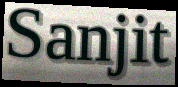
Sanjit